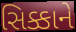
સિક્કાને